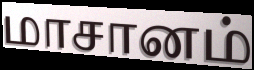
மாசானம்